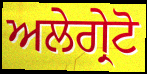
ਅਲੇਗ੍ਰੇਟੋ